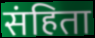
संहिता